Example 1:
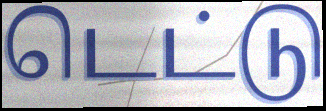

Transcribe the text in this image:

டெட்டு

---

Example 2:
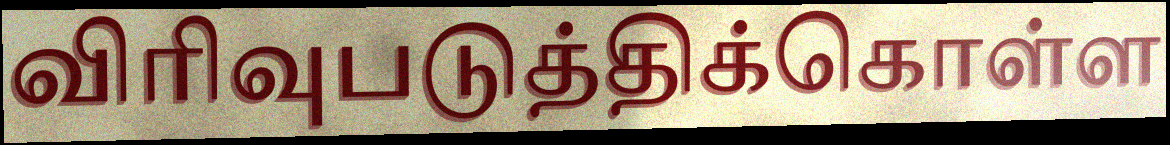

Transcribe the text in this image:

விரிவுபடுத்திக்கொள்ள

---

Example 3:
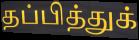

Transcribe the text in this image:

தப்பித்துக்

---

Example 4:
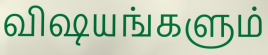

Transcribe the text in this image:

விஷயங்களும்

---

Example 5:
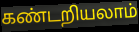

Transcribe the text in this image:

கண்டறியலாம்